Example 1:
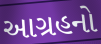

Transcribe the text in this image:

આગ્રહનો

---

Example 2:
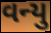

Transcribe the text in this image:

વન્યુ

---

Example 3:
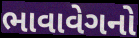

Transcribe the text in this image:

ભાવાવેગનો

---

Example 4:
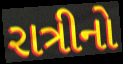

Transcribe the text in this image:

રાત્રીનો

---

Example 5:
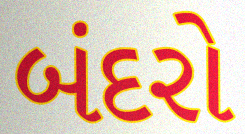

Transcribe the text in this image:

બંદરો